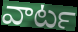
వాటర్‍